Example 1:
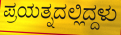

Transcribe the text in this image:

ಪ್ರಯತ್ನದಲ್ಲಿದ್ದಳು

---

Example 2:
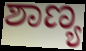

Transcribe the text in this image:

ಶಾಣ್ಯ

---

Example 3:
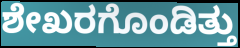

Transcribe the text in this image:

ಶೇಖರಗೊಂಡಿತ್ತು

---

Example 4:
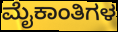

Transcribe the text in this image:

ಮೈಕಾಂತಿಗಳ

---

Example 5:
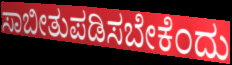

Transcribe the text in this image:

ಸಾಬೀತುಪಡಿಸಬೇಕೆಂದು